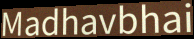
Madhavbhai